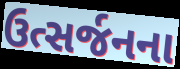
ઉત્સર્જનના